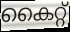
കൈറ്റ്